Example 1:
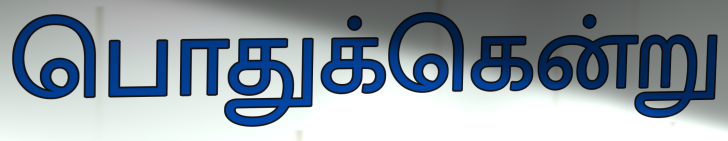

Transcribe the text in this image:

பொதுக்கென்று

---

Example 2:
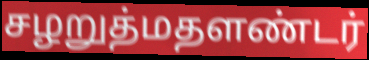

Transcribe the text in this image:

சழறுத்மதளண்டர்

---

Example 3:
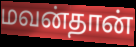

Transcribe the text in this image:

மவன்தான்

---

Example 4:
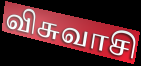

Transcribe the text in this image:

விசுவாசி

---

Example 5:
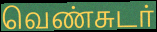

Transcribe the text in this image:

வெண்சுடர்